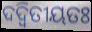
ଦଦ୍ୱିତୀୟତଃ